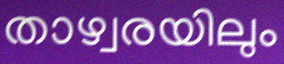
താഴ്വരയിലും